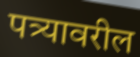
पत्र्यावरील